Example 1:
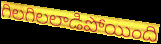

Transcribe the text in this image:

గిలగిలలాడిపోయింది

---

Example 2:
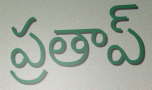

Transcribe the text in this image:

ప్రతాప్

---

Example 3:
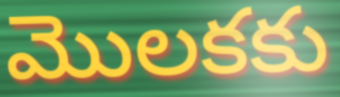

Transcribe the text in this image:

మొలకకు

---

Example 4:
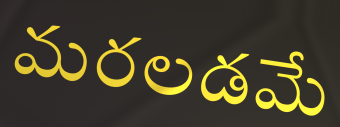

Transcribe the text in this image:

మరలడమే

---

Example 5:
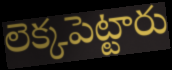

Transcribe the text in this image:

లెక్కపెట్టారు